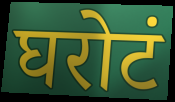
घरोटं